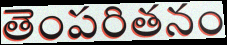
తెంపరితనం